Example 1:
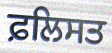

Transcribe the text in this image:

ਫ਼ਲਿਸਤ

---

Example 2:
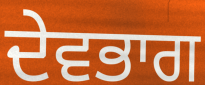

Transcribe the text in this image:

ਦੇਵਭਾਗ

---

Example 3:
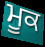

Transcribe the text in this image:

ਮੂਕ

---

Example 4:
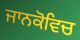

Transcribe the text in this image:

ਜਾਨਕੋਵਿਚ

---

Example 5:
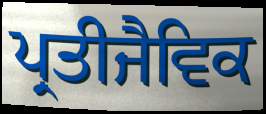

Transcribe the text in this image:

ਪ੍ਰਤੀਜੈਵਿਕ